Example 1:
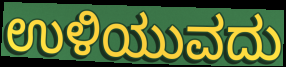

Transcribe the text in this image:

ಉಳಿಯುವದು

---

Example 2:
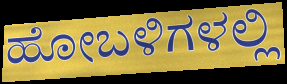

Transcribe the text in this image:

ಹೋಬಳಿಗಳಲ್ಲಿ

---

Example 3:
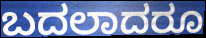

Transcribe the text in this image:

ಬದಲಾದರೂ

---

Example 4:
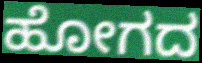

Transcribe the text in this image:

ಹೋಗದ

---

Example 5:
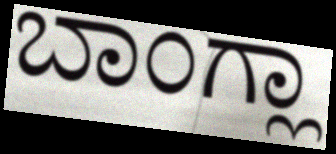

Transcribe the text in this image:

ಬಾಂಗ್ಲಾ